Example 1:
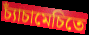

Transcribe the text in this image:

চ্যাঁচামেচিতে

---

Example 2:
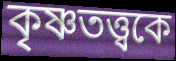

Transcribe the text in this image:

কৃষ্ণতত্ত্বকে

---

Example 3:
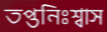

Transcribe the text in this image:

তপ্তনিঃশ্বাস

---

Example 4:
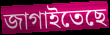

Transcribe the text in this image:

জাগাইতেছে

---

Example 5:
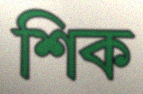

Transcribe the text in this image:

শিক